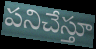
పనిచేస్తూ